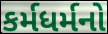
કર્મધર્મનો